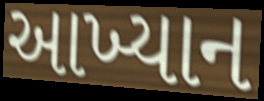
આખ્યાન